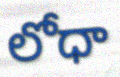
లోధా